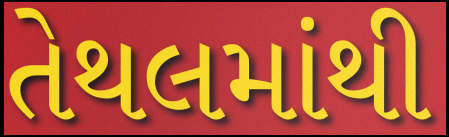
તેથલમાંથી